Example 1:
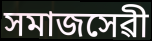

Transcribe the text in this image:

সমাজসেৱী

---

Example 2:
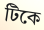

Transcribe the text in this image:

টিকে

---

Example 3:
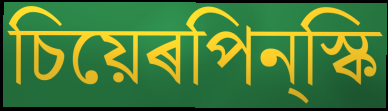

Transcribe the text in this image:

চিয়েৰপিন্‌স্কি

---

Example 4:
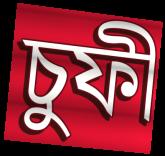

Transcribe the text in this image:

চুফী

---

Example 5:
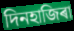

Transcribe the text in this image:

দিনহাজিৰা